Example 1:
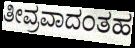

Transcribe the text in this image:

ತೀವ್ರವಾದಂತಹ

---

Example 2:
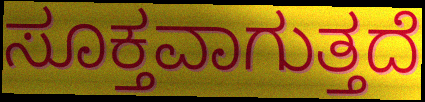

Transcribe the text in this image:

ಸೂಕ್ತವಾಗುತ್ತದೆ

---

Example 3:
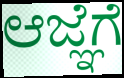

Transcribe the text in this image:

ಆಜ್ಞೆಗೆ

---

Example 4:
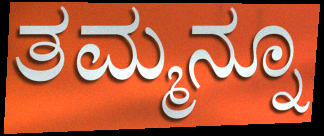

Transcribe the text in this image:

ತಮ್ಮನ್ನೂ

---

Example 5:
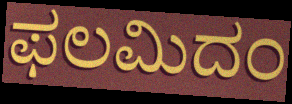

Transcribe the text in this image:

ಫಲಮಿದಂ